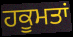
ਹਕੂਮਤਾਂ